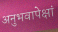
अनुभवापेक्षां